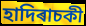
হাদিৰাচকী